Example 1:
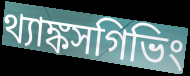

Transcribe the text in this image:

থ্যাঙ্কসগিভিং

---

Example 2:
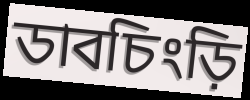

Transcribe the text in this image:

ডাবচিংড়ি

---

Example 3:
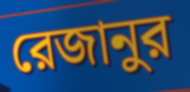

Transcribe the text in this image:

রেজানুর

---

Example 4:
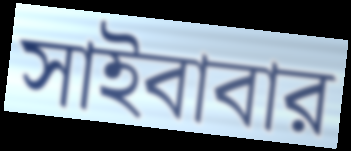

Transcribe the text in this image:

সাইবাবার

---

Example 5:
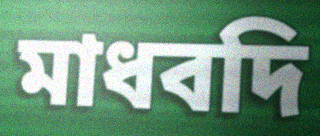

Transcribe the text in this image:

মাধবদি